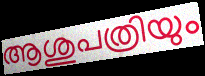
ആശുപത്രിയും